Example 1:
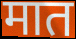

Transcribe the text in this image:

मात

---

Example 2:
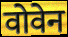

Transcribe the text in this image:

वोवेन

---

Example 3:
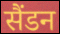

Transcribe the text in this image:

सैंडन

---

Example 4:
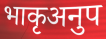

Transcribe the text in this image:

भाकृअनुप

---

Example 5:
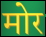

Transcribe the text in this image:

मोर